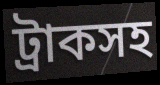
ট্রাকসহ